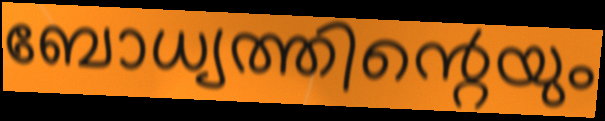
ബോധ്യത്തിന്റെയും